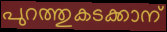
പുറത്തുകടക്കാന്